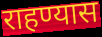
राहण्यास